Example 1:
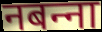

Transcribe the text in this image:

नबन्ना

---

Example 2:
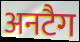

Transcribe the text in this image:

अनटैग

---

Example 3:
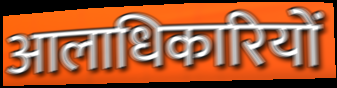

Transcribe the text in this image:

आलाधिकारियों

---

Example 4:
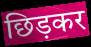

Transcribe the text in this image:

छिड़कर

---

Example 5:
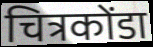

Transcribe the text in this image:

चित्रकोंडा